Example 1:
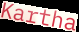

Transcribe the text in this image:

Kartha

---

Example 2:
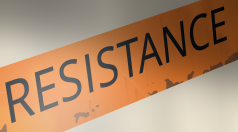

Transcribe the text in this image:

RESISTANCE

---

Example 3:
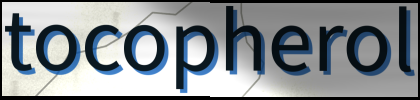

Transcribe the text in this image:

tocopherol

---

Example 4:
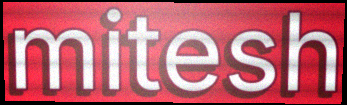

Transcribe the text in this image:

mitesh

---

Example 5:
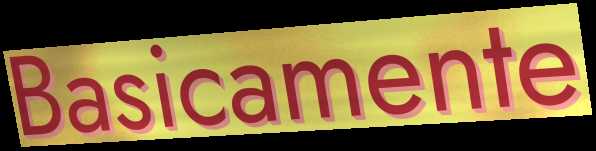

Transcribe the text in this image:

Basicamente